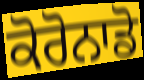
ਕੋਰੋਨਾਡੋ